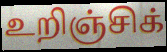
உறிஞ்சிக்